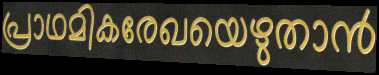
പ്രാഥമികരേഖയെഴുതാൻ